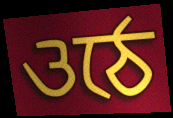
ওঠে